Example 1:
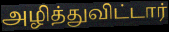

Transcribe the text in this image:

அழித்துவிட்டார்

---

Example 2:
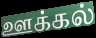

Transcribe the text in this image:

ஊக்கல்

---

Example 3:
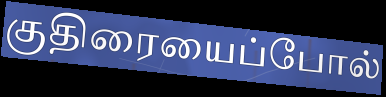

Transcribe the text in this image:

குதிரையைப்போல்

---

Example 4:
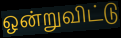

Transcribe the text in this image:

ஒன்றுவிட்டு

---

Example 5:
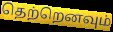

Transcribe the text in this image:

தெற்றெனவும்